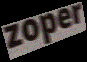
zoper